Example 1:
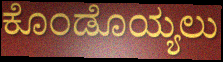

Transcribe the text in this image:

ಕೊಂಡೊಯ್ಯಲು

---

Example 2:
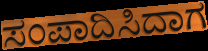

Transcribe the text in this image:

ಸಂಪಾದಿಸಿದಾಗ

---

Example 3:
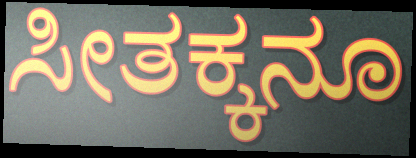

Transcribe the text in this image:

ಸೀತಕ್ಕನೂ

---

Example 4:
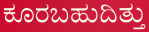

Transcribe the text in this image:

ಕೂರಬಹುದಿತ್ತು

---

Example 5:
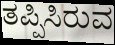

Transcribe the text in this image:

ತಪ್ಪಿಸಿರುವ